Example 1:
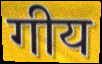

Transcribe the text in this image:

गीय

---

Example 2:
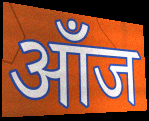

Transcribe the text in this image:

आँज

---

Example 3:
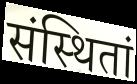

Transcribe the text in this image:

संस्थितां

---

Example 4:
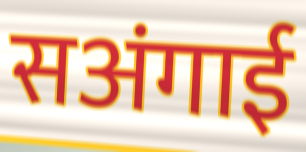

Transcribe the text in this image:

सअंगाई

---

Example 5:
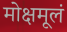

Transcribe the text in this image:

मोक्षमूलं